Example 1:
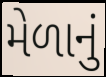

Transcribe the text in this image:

મેળાનું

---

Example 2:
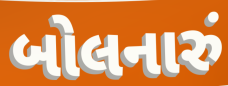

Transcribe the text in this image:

બોલનારું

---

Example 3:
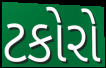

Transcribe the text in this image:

ટકોરો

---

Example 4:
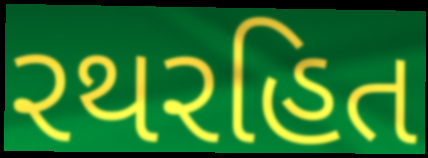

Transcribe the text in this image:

રથરહિત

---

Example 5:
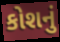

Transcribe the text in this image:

કોશનું